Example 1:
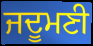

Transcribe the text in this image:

ਜਦੂਮਣੀ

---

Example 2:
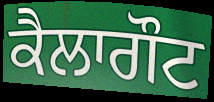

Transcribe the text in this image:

ਕੈਲਾਗੌਟ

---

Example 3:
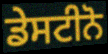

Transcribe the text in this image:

ਡੇਸਟੀਨੋ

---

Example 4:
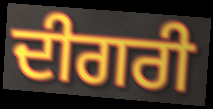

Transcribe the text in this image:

ਦੀਗਰੀ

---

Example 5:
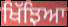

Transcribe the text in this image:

ਖਿੱਝਿਆ